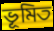
ভূমিত